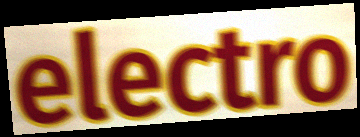
electro